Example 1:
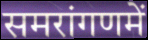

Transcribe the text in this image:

समरांगणमें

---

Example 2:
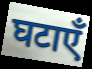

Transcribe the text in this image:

घटाएँ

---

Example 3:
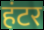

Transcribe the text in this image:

हंटर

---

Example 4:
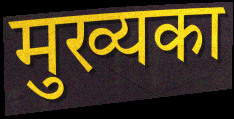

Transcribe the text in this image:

मुख्यका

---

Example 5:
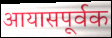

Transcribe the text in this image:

आयासपूर्वक